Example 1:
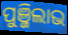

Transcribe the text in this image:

ପୁଞ୍ଜିଲାଭ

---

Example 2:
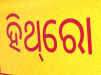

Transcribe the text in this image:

ହିଥ୍‌ରୋ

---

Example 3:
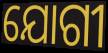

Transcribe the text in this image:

ଯୋଗୀ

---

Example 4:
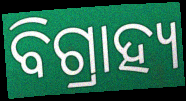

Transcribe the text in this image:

ବିଗ୍ରାହ୍ୟ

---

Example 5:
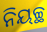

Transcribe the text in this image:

ନିୟଚ୍ଛ